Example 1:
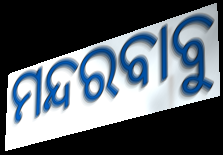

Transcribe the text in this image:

ମନ୍ଦରବାବୁ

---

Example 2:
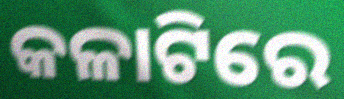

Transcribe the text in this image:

କଳାଟିରେ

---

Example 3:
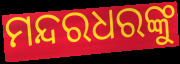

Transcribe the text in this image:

ମନ୍ଦରଧରଙ୍କୁ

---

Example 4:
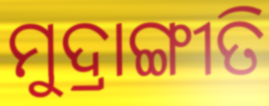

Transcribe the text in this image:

ମୁଦ୍ରାଙ୍ଗୀତି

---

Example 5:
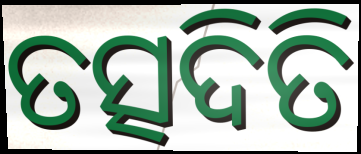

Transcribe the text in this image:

ତତ୍ସଦିତି